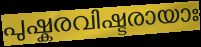
പുഷ്കരവിഷ്ടരായാഃ